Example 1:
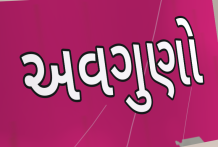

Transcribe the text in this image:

અવગુણો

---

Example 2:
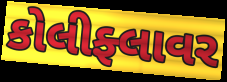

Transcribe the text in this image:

કોલીફ્લાવર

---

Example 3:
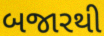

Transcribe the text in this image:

બજારથી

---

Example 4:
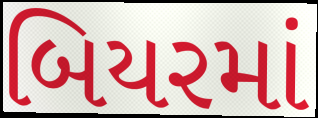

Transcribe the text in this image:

બિયરમાં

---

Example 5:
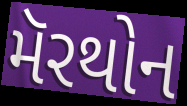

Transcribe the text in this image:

મૅરથોન